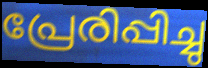
പ്രേരിപ്പിച്ചു